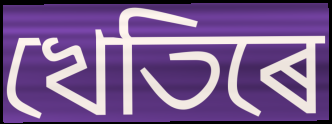
খেতিৰে